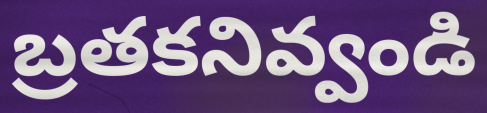
బ్రతకనివ్వండి